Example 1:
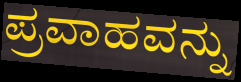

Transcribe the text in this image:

ಪ್ರವಾಹವನ್ನು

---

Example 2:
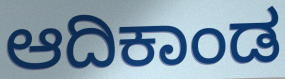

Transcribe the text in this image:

ಆದಿಕಾಂಡ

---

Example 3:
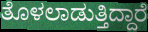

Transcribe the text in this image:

ತೊಳಲಾಡುತ್ತಿದ್ದಾರೆ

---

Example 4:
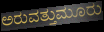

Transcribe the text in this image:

ಅರುವತ್ತುಮೂರು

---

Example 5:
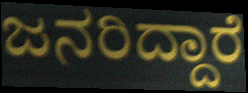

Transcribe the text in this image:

ಜನರಿದ್ದಾರೆ